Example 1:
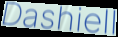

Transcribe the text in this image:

Dashiell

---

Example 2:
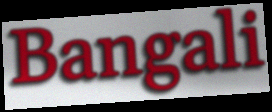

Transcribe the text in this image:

Bangali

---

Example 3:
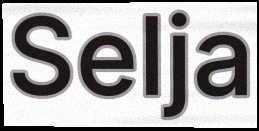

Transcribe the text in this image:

Selja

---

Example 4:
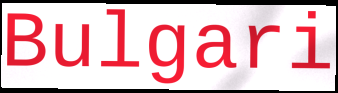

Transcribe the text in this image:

Bulgari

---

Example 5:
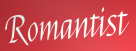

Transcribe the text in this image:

Romantist